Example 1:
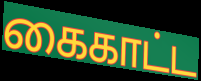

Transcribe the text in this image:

கைகாட்ட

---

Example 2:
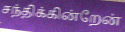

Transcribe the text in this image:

சந்திக்கின்றேன்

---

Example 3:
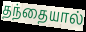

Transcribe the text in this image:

தந்தையால்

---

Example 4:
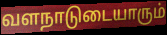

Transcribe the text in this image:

வளநாடுடையாரும்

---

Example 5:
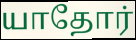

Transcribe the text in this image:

யாதோர்